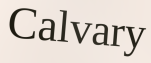
Calvary